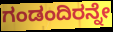
ಗಂಡಂದಿರನ್ನೇ